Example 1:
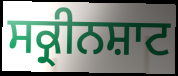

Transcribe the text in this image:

ਸਕ੍ਰੀਨਸ਼ਾਟ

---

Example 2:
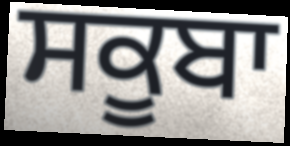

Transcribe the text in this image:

ਸਕੂਬਾ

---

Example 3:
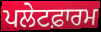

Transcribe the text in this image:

ਪਲੇਟਫ਼ਾਰਮ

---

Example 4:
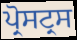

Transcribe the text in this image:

ਪ੍ਰੋਸਟ੍ਰਸ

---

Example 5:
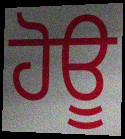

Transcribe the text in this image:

ਹੋਊ